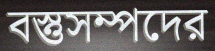
বস্তুসম্পদের